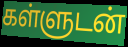
கள்ளுடன்